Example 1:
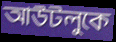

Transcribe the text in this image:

আউটলুকে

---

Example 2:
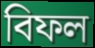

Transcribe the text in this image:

বিফল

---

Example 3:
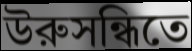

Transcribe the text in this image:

উরুসন্ধিতে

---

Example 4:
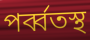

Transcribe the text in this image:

পর্ব্বতস্থ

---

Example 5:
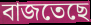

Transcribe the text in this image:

বাজতেছে